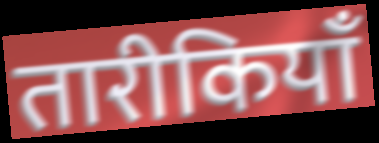
तारीकियाँ